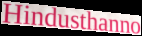
Hindusthanno